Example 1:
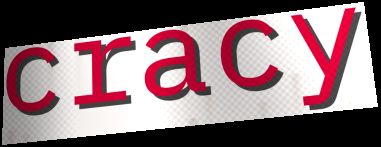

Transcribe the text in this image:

cracy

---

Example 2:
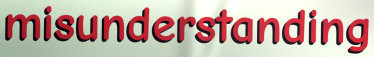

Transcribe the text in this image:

misunderstanding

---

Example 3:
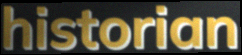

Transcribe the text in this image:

historian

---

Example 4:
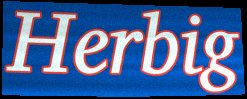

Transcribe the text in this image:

Herbig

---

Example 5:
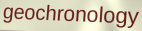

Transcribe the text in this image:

geochronology